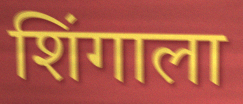
शिंगाला